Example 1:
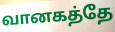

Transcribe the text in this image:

வானகத்தே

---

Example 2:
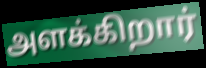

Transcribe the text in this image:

அளக்கிறார்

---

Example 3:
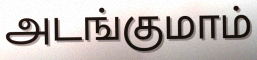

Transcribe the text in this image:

அடங்குமாம்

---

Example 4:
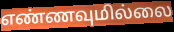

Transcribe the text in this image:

எண்ணவுமில்லை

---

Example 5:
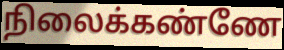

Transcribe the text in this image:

நிலைக்கண்ணே